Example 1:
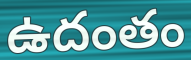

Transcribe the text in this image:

ఉదంతం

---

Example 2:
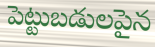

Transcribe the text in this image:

పెట్టుబడులపైన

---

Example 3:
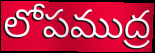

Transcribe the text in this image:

లోపముద్ర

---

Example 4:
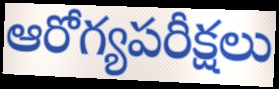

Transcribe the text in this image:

ఆరోగ్యపరీక్షలు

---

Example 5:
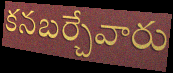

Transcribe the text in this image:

కనబర్చేవారు